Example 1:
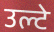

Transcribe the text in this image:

उल्टे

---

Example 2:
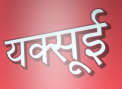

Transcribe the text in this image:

यक्सूई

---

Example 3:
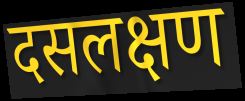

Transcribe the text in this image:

दसलक्षण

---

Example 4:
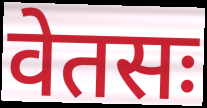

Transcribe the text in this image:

वेतसः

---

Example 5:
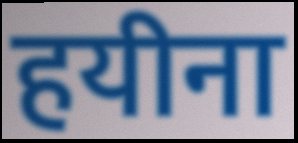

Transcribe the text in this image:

हयीना